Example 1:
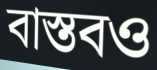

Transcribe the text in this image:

বাস্তবও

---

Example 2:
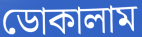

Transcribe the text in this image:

ডোকালাম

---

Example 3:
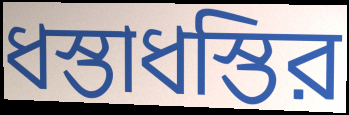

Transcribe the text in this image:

ধস্তাধস্তির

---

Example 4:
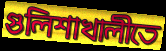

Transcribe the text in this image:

গুলিশাখালীতে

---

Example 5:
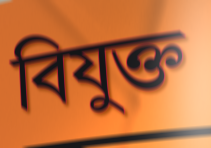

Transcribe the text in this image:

বিযুক্ত